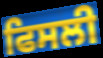
ਫਿਸਲੀ